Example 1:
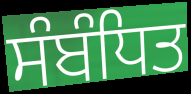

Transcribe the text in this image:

ਸੰਬੰਧਿਤ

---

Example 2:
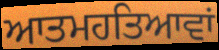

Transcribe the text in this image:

ਆਤਮਹਤਿਆਵਾਂ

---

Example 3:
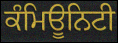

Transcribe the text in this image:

ਕੰਮਿਊਨਿਟੀ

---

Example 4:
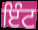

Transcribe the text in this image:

ਇੰਟ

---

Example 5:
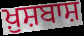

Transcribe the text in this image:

ਖ਼ੁਸ਼ਬਾਸ਼